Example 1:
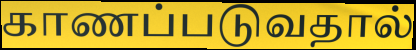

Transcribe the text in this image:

காணப்படுவதால்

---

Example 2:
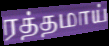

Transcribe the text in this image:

ரத்தமாய்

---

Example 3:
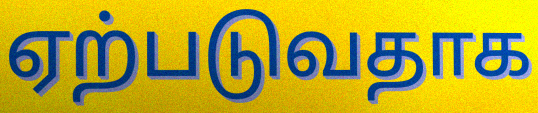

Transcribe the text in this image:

ஏற்படுவதாக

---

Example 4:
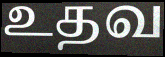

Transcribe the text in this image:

உதவ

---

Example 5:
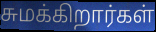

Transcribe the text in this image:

சுமக்கிறார்கள்